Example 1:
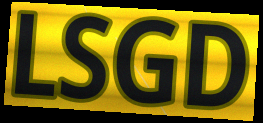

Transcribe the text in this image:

LSGD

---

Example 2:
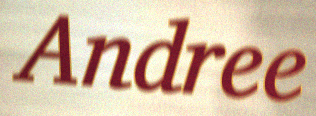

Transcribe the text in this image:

Andree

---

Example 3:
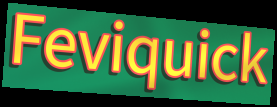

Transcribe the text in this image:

Feviquick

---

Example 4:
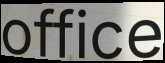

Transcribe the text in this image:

office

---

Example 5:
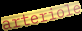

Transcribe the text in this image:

arteriole